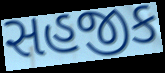
સહજીક